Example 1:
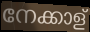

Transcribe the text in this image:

നേക്കാള്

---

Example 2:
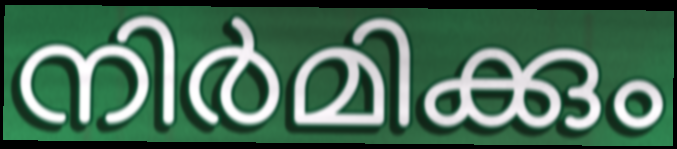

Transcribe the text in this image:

നിർമിക്കും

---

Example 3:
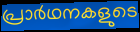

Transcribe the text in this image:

പ്രാർഥനകളുടെ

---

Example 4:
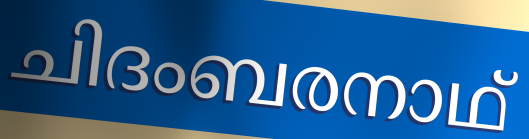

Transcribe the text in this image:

ചിദംബരനാഥ്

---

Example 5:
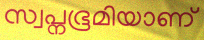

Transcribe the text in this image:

സ്വപ്നഭൂമിയാണ്